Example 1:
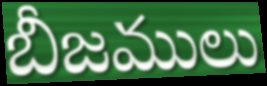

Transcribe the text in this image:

బీజములు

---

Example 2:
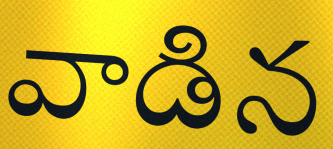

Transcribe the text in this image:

వాడిన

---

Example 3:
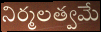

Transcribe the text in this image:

నిర్మలత్వమే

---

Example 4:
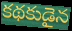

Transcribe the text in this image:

కథకుడైన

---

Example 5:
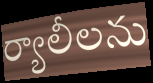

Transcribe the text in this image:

ర్యాలీలను